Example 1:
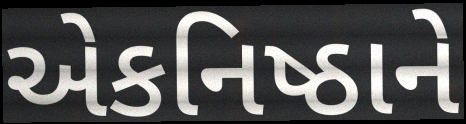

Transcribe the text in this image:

એકનિષ્ઠાને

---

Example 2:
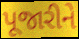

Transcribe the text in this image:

પૂજારીને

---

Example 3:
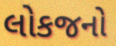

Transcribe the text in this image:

લોકજનો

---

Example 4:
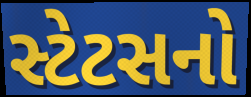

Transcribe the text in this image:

સ્ટેટસનો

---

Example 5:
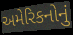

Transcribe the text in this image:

અમેરિકનોનું